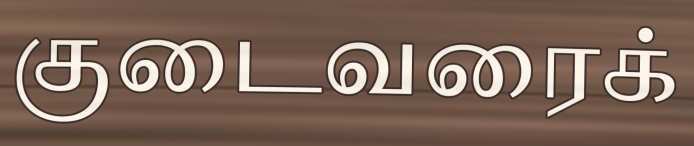
குடைவரைக்